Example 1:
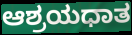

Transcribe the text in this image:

ಆಶ್ರಯಧಾತ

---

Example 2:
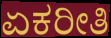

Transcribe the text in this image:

ಏಕರೀತಿ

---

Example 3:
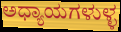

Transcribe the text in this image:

ಅಧ್ಯಾಯಗಳುಳ್ಳ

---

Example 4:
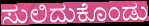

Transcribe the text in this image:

ಸುಲಿದುಕೊಂಡು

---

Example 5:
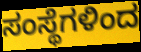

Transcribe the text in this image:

ಸಂಸ್ಥೆಗಳಿಂದ